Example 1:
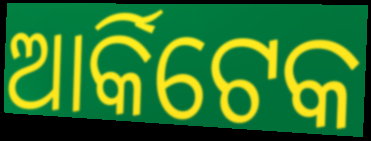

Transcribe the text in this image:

ଆର୍କିଟେକ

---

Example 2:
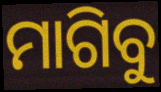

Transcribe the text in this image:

ମାଗିବୁ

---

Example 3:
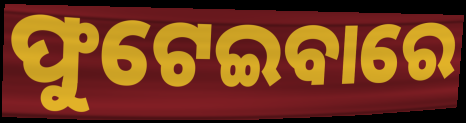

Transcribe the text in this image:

ଫୁଟେଇବାରେ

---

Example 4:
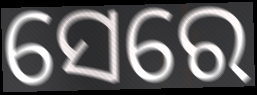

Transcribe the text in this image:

ସେରେ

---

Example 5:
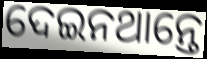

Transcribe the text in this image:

ଦେଇନଥାନ୍ତେ